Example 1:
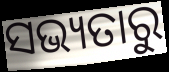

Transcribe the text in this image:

ସଭ୍ୟତାରୁ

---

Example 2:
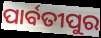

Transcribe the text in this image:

ପାର୍ବତୀପୁର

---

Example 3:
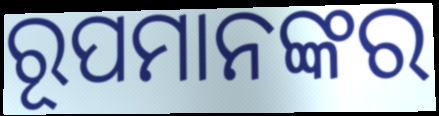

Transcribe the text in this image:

ରୂପମାନଙ୍କର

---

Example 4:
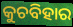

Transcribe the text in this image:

କୁଚବିହାର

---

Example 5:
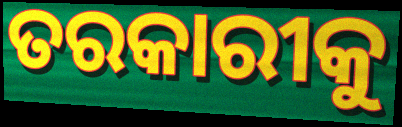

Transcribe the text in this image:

ତରକାରୀକୁ